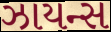
ઝાયન્સ